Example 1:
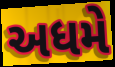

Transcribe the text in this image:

અધમે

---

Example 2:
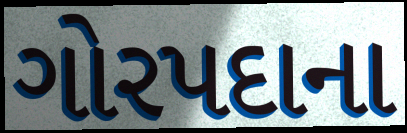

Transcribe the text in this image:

ગોરપદાના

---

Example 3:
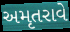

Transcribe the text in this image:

અમૃતરાવે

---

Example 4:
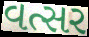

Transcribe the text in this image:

વત્સર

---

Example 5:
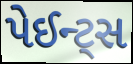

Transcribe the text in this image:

પેઈન્ટ્સ